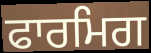
ਫਾਰਮਿਗ